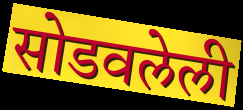
सोडवलेली